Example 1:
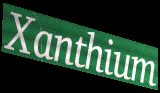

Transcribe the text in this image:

Xanthium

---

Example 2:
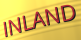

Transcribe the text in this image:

INLAND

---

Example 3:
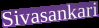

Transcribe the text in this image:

Sivasankari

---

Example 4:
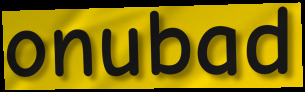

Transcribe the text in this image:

onubad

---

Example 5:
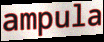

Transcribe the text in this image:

ampula